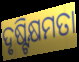
ଦୃଷ୍ଟିକ୍ଷମତା